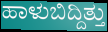
ಹಾಳುಬಿದ್ದಿತ್ತು